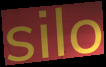
silo